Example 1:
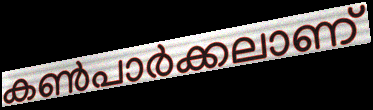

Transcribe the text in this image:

കൺപാർക്കലാണ്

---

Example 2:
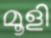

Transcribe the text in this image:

മൂളി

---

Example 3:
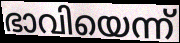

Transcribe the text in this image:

ഭാവിയെന്ന്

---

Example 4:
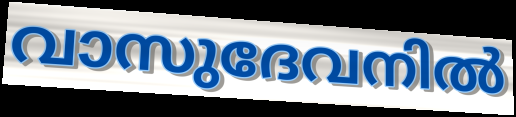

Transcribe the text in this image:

വാസുദേവനിൽ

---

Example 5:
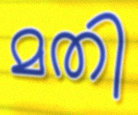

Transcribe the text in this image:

മതി